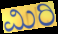
ಮಿರಿ